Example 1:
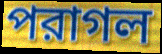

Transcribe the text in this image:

পরাগল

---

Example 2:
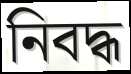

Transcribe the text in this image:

নিবদ্ধ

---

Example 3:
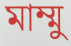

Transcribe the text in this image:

মাম্মু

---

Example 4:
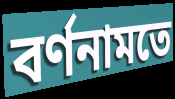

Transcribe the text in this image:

বর্ণনামতে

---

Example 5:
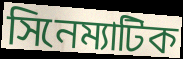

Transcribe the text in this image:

সিনেম্যাটিক